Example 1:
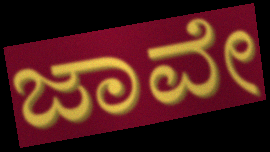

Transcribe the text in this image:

ಜಾವೇ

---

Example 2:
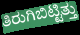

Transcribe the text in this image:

ತಿರುಗಿಬಿಟ್ಟಿತ್ತು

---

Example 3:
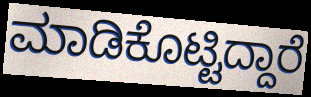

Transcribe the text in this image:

ಮಾಡಿಕೊಟ್ಟಿದ್ದಾರೆ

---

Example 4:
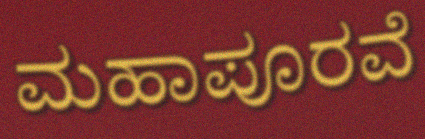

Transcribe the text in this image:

ಮಹಾಪೂರವೆ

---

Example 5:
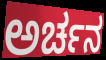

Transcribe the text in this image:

ಅರ್ಚನ